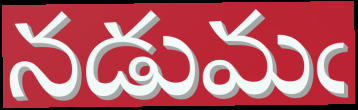
నడుమఁ